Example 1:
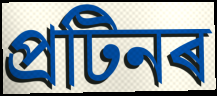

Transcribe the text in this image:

প্ৰটিনৰ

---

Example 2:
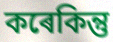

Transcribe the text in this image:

কৰেকিন্তু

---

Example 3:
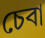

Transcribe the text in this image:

চেবা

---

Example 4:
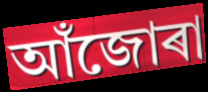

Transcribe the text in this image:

আঁজোৰা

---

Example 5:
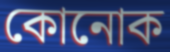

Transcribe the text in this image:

কোনোক